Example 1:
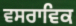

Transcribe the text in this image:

ਵਸਰਾਵਿਕ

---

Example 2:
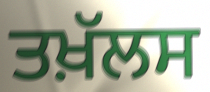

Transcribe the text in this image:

ਤਖ਼ੱਲਸ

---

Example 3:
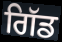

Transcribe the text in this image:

ਗਿੱਡ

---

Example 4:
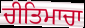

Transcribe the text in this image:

ਚੀਤਿਮਾਚਾ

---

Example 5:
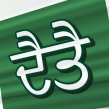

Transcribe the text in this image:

ਦੈਤੈ